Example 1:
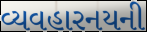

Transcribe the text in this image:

વ્યવહારનયની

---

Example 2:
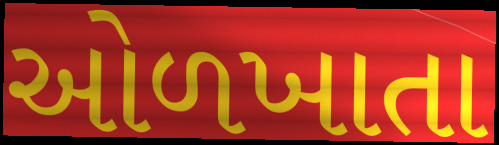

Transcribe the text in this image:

ઓળખાતા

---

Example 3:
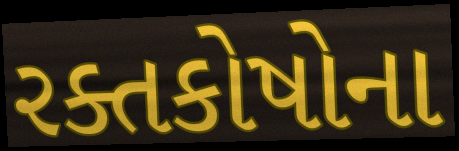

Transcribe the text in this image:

રક્તકોષોના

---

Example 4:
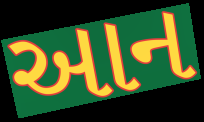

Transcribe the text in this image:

આન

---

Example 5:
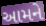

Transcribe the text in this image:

આમને